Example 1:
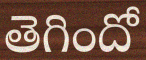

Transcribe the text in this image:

తెగిందో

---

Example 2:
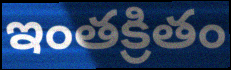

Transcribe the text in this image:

ఇంతక్రితం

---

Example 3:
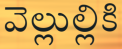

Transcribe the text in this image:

వెల్లుల్లికి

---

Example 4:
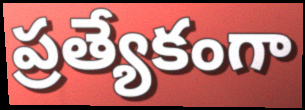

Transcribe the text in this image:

ప్రత్యేకంగా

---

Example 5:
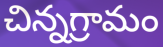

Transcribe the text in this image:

చిన్నగ్రామం